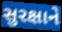
સુરક્ષાને